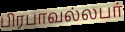
பிரபாவல்லபர்